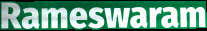
Rameswaram